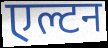
एल्टन